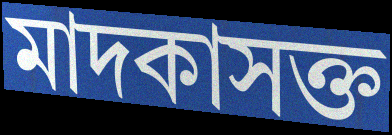
মাদকাসক্ত